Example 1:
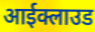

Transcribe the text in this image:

आईक्लाउड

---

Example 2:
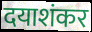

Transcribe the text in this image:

दयाशंकर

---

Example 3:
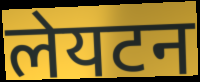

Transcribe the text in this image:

लेयटन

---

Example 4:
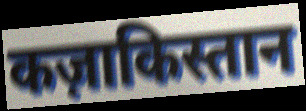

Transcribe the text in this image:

कज़ाकिस्तान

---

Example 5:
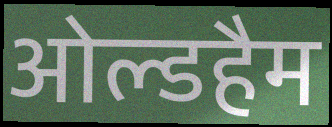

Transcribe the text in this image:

ओल्डहैम